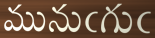
మునుఁగుఁ